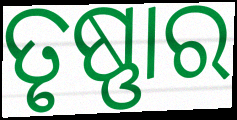
ତୃଷ୍ଣାର